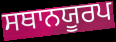
ਸਥਾਨਯੂਰਪ